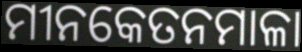
ମୀନକେତନମାଳା